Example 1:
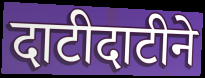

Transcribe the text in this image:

दाटीदाटीने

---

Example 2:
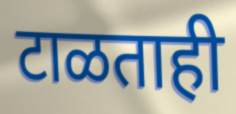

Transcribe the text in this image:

टाळताही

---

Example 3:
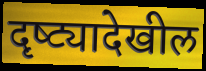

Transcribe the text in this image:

दृष्ट्यादेखील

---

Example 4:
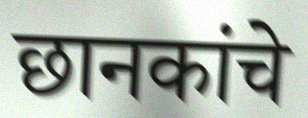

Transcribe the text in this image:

छानकांचे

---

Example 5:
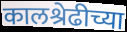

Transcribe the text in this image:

कालश्रेढीच्या